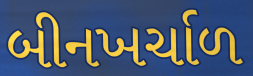
બીનખર્ચાળ